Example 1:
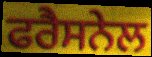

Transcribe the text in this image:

ਫਰੈਸਨੇਲ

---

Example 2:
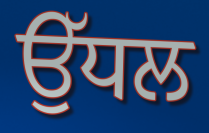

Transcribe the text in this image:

ਉੱਧਲ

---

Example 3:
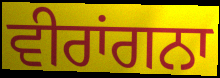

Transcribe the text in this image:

ਵੀਰਾਂਗਨਾ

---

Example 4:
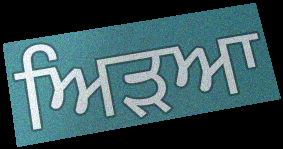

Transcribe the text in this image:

ਅਿੜਆ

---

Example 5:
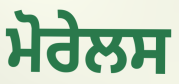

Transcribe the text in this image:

ਮੋਰੇਲਸ